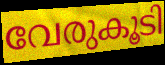
വേരുകൂടി